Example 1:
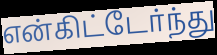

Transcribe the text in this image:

என்கிட்டேர்ந்து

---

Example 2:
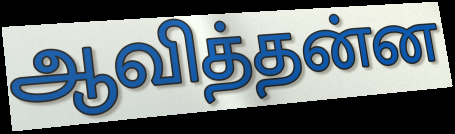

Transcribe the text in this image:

ஆவித்தன்ன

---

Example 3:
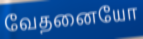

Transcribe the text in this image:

வேதனையோ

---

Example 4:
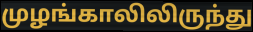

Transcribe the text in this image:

முழங்காலிலிருந்து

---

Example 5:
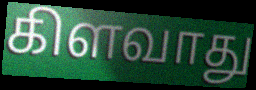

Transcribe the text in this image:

கிளவாது